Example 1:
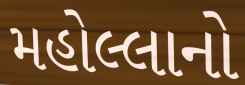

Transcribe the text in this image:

મહોલ્લાનો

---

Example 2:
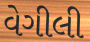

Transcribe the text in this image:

વેગીલી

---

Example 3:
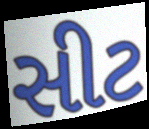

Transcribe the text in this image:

સીટ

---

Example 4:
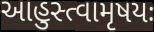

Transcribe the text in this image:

આહુસ્ત્વામૃષયઃ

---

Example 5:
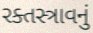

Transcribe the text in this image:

રક્તસ્ત્રાવનું